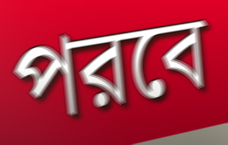
পরবে